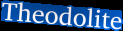
Theodolite